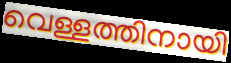
വെള്ളത്തിനായി